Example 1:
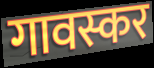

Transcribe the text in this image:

गावस्‍कर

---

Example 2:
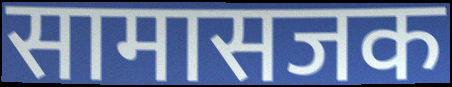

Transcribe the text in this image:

सामासजक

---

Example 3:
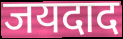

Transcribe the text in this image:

जयदाद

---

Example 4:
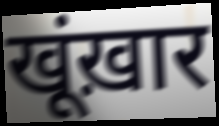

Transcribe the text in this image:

खूंख़ार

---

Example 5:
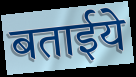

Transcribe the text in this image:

बताईये